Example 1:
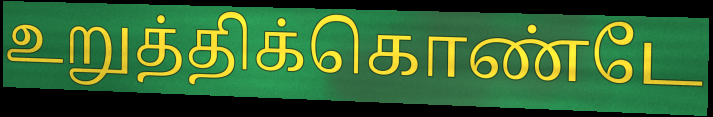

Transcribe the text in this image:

உறுத்திக்கொண்டே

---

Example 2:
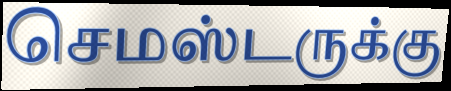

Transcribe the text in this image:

செமஸ்டருக்கு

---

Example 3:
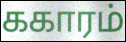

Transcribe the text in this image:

ககாரம்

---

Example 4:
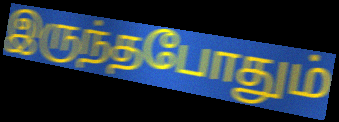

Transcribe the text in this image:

இருந்தபோதும்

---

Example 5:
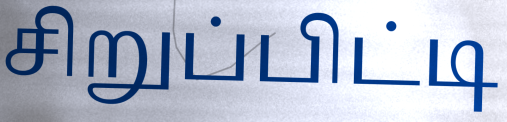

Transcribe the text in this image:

சிறுப்பிட்டி